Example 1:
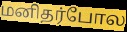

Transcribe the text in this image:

மனிதர்போல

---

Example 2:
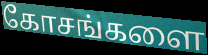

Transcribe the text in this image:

கோசங்களை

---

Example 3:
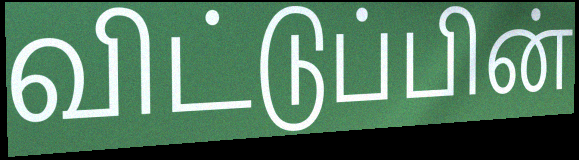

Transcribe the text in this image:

விட்டுப்பின்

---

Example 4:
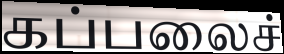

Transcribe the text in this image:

கப்பலைச்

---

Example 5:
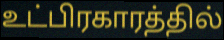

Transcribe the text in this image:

உட்பிரகாரத்தில்